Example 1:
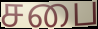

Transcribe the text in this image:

சபை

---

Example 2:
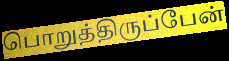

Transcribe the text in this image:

பொறுத்திருப்பேன்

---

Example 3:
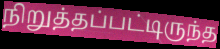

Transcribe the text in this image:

நிறுத்தப்பட்டிருந்த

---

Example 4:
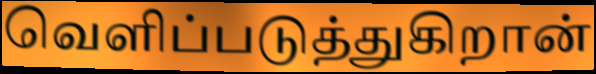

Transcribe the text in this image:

வெளிப்படுத்துகிறான்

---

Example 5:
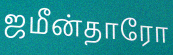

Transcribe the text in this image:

ஜமீன்தாரோ